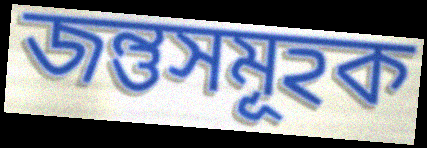
জন্তুসমূহক